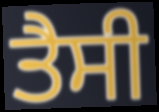
ਤੈਸੀ